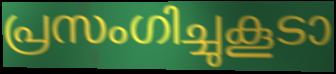
പ്രസംഗിച്ചുകൂടാ